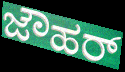
ಜೌಹರ್